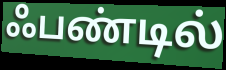
ஃபண்டில்